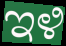
ಇಳಿ